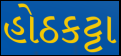
હોઠકટ્ટા